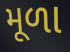
મૂળા